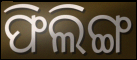
ଫିଲିଙ୍ଗ